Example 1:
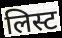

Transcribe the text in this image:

लिस्ट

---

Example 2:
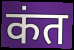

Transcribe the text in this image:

कंत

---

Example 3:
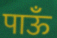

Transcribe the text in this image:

पाऊँ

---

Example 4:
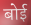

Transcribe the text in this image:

बोई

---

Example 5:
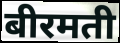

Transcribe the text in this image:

बीरमती